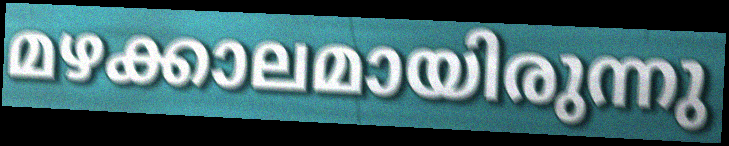
മഴക്കാലമായിരുന്നു